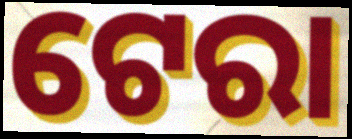
ଟେରା